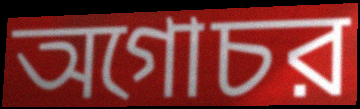
অগোচর